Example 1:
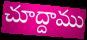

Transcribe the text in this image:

చూద్దాము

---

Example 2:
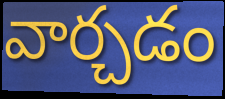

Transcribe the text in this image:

వార్చడం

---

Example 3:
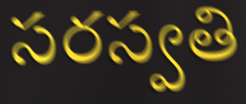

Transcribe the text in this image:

సరస్వతి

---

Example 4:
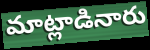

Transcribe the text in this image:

మాట్లాడినారు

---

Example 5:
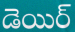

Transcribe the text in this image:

డెయిర్